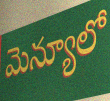
మెన్యూలో